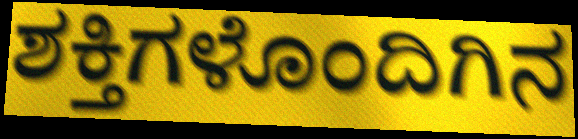
ಶಕ್ತಿಗಳೊಂದಿಗಿನ